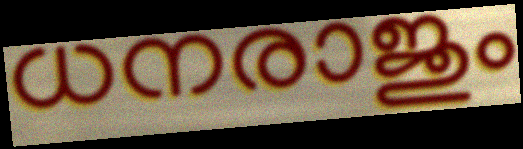
ധനരാജും